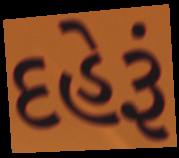
દહેરૂં